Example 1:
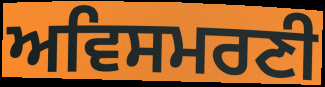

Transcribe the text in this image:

ਅਵਿਸਮਰਣੀ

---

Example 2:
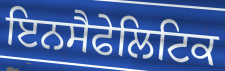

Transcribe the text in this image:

ਇਨਸੈਫੇਲਿਟਿਕ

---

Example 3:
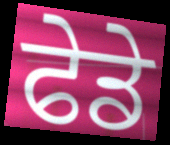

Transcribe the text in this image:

ਫੇਡੇ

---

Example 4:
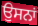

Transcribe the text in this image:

ਉਸਨਾਂ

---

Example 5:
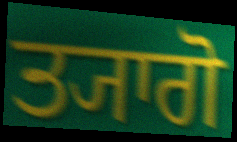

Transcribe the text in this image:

ਤ੍ਯਾਗੋ